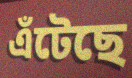
এঁটেছে